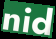
nid